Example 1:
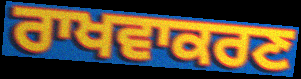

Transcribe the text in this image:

ਰਾਖਵਾਕਰਣ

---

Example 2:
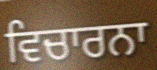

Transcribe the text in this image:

ਵਿਚਾਰਨਾ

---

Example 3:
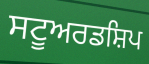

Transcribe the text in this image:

ਸਟੂਅਰਡਸ਼ਿਪ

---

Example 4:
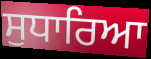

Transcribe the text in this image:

ਸੁਧਾਰਿਆ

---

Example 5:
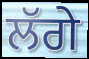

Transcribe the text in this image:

ਲੱਗੇ